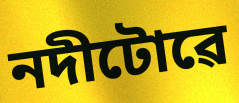
নদীটোৱে